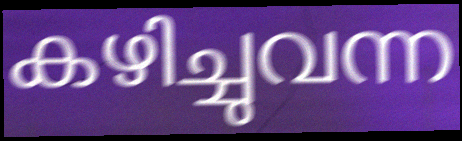
കഴിച്ചുവന്ന